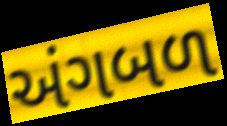
અંગબળ